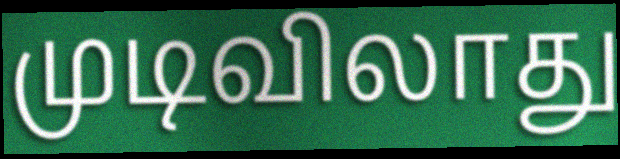
முடிவிலாது